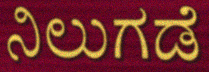
ನಿಲುಗಡೆ